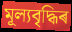
মূল্যবৃদ্ধিৰ